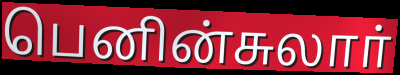
பெனின்சுலார்